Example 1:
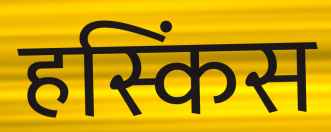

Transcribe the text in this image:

हस्किंस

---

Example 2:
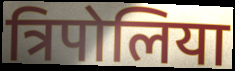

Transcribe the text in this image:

त्रिपोलिया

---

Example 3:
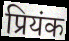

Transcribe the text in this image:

प्रियंक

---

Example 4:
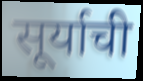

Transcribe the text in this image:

सूर्याची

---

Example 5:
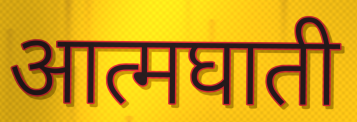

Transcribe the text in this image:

आत्मघाती